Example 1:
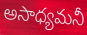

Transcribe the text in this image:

అసాధ్యమనీ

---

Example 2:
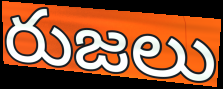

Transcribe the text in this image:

రుజలు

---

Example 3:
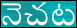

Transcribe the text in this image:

నెచట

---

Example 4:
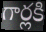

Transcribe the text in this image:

గార్లకి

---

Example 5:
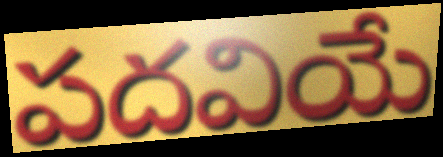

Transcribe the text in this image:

పదవియే